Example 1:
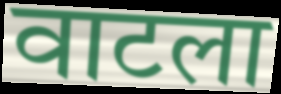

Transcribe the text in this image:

वाटला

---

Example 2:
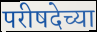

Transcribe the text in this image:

परीषदेच्या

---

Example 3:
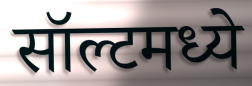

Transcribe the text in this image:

सॉल्टमध्ये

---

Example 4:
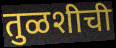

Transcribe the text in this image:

तुळशीची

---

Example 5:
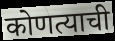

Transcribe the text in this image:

कोणत्याची